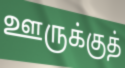
ஊருக்குத்